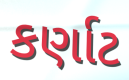
કર્ણાટ